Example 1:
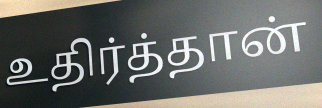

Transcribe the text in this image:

உதிர்த்தான்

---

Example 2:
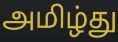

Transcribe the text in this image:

அமிழ்து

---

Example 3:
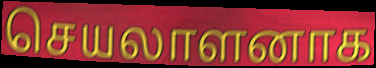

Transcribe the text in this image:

செயலாளனாக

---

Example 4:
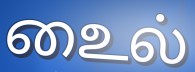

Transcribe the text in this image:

உைல்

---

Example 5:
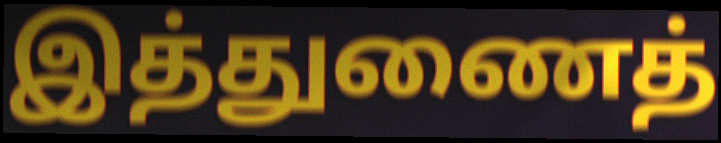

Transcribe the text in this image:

இத்துணைத்